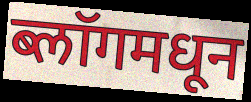
ब्लॉगमधून